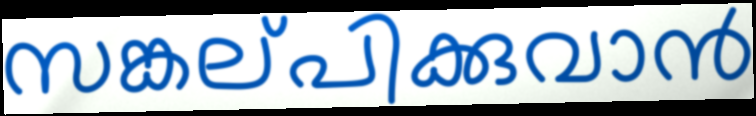
സങ്കല്‌പിക്കുവാൻ